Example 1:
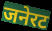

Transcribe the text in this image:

जनेरट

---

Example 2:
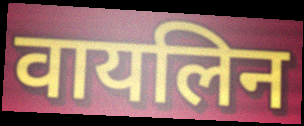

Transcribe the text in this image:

वायलिन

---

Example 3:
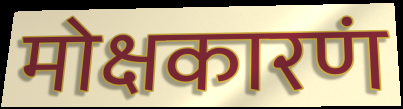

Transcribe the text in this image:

मोक्षकारणं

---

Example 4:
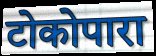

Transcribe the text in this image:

टोकोपारा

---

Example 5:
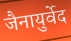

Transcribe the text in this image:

जैनायुर्वेद